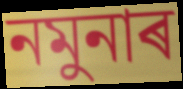
নমুনাৰ